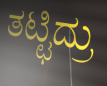
ತಟ್ಟಿದ್ರು